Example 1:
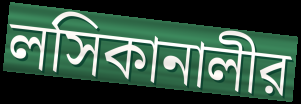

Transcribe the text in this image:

লসিকানালীর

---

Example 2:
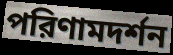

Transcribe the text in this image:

পরিণামদর্শন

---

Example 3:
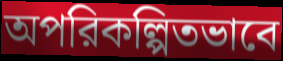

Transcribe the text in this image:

অপরিকল্পিতভাবে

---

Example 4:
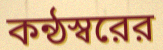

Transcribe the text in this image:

কন্ঠস্বরের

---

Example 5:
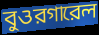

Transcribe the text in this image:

বুওরগারেল